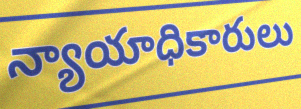
న్యాయాధికారులు